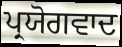
ਪ੍ਰਯੋਗਵਾਦ